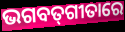
ଭଗବତ୍‌ଗୀତାରେ